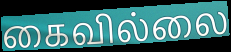
கைவில்லை